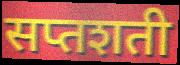
सप्तशती